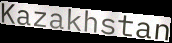
Kazakhstan